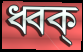
ধ্বক্